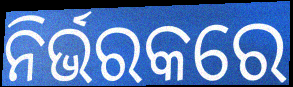
ନିର୍ଭରକରେ